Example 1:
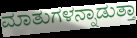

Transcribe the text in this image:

ಮಾತುಗಳನ್ನಾಡುತ್ತಾ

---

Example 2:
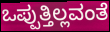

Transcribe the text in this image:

ಒಪ್ಪುತ್ತಿಲ್ಲವಂತೆ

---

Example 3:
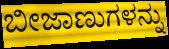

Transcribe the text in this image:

ಬೀಜಾಣುಗಳನ್ನು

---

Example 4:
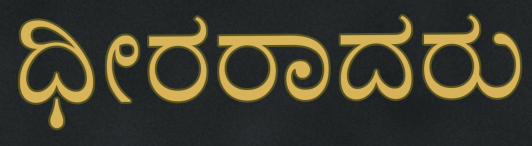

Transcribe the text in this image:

ಧೀರರಾದರು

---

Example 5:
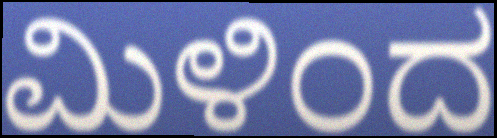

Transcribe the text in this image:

ಮಿಳಿಂದ